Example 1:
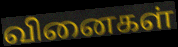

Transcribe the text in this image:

வினைகள்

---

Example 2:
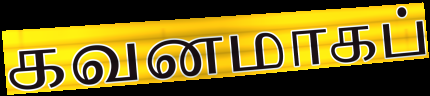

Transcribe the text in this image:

கவனமாகப்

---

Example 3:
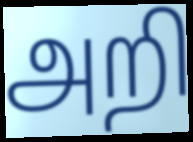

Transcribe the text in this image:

அறி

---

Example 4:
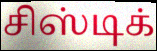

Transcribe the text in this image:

சிஸ்டிக்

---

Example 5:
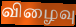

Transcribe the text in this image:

விழைவு